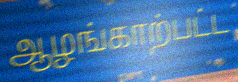
ஆழங்காற்பட்ட